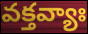
వక్తవ్యాః